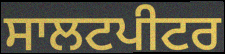
ਸਾਲਟਪੀਟਰ